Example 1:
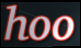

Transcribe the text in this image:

hoo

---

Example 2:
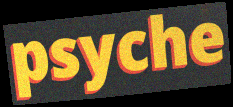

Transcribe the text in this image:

psyche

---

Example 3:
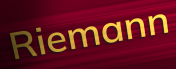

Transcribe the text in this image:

Riemann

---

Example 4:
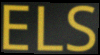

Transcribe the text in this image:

ELS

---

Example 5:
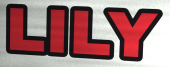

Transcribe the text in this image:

LILY